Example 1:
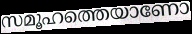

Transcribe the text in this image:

സമൂഹത്തെയാണോ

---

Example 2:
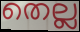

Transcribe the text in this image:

തെല്ല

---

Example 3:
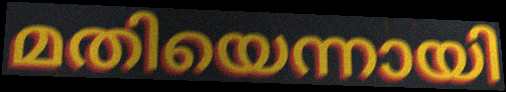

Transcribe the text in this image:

മതിയെന്നായി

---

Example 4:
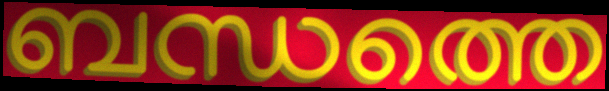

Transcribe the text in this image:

ബന്ധത്തെ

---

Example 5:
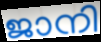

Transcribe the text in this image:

ജാനി